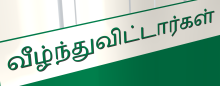
வீழ்ந்துவிட்டார்கள்